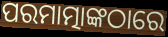
ପରମାତ୍ମାଙ୍କଠାରେ